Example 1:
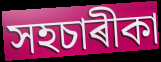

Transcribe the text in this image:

সহচাৰীকা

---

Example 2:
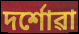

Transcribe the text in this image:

দৰ্শোৱা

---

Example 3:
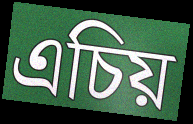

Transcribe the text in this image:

এচিয়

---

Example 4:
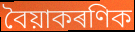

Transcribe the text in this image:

বৈয়াকৰণিক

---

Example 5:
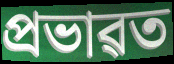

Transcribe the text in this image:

প্ৰভাৱত